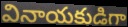
వినాయకుడిగా